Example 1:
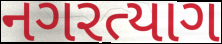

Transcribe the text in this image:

નગરત્યાગ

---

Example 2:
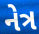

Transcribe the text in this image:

નેત્ર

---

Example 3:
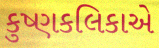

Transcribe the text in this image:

કુષ્ણકલિકાએ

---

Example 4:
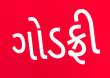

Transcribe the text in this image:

ગોડફ્રી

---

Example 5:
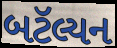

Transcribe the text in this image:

બટૅલ્યન